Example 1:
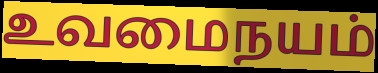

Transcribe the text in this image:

உவமைநயம்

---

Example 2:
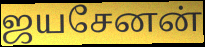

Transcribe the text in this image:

ஜயசேனன்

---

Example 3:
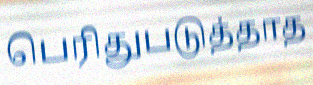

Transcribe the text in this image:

பெரிதுபடுத்தாத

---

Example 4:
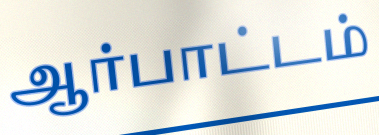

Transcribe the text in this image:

ஆர்பாட்டம்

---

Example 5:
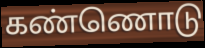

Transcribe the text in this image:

கண்ணொடு